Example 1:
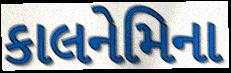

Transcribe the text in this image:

કાલનેમિના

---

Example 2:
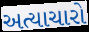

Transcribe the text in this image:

અત્યાચારો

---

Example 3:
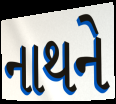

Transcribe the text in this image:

નાથને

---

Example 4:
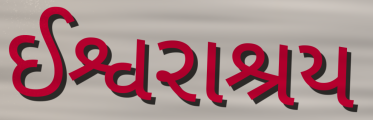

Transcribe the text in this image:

ઈશ્વરાશ્રય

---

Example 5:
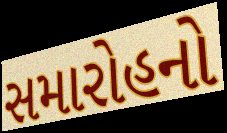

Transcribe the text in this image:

સમારોહનો